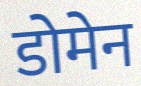
डोमेन